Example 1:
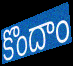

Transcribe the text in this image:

కొందాం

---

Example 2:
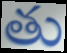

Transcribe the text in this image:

తు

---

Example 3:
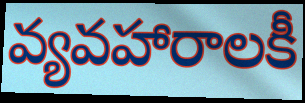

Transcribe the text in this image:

వ్యవహారాలకీ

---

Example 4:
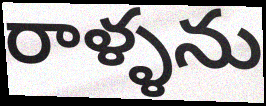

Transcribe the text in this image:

రాళ్ళను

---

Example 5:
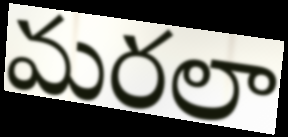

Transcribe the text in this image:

మరలా